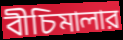
বীচিমালার